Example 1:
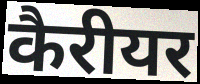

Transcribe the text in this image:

कैरीयर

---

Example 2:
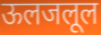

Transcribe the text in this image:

ऊलजलूल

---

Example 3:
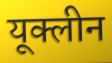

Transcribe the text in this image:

यूक्लीन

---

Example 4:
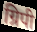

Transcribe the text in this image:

ग्रिपी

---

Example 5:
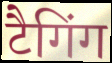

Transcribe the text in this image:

टैगिंग